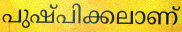
പുഷ്പിക്കലാണ്